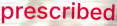
prescribed